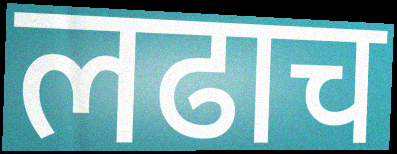
लढाच